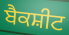
ਬੈਕਸ਼ੀਟ